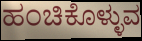
ಹಂಚಿಕೊಳ್ಳುವ